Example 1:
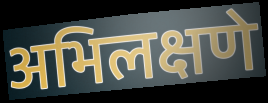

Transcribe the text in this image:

अभिलक्षणे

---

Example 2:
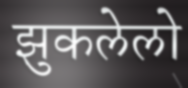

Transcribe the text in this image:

झुकलेलो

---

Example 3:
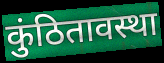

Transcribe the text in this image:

कुंठितावस्था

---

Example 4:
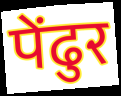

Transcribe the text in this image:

पेंढुर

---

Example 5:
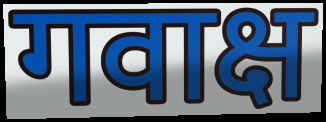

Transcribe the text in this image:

गवाक्ष